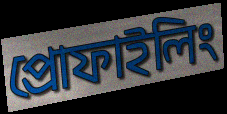
প্রোফাইলিং